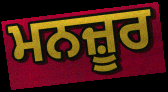
ਮਨਜ਼ੂਰ